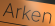
Arken